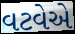
વટવેએ